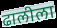
ढालीला